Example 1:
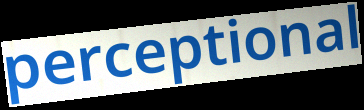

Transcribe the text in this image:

perceptional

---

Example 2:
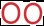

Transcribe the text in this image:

OO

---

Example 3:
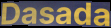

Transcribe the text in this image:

Dasada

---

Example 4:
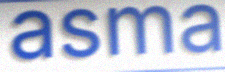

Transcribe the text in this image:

asma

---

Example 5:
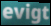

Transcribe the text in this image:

evigt